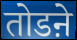
तोडऩे